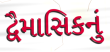
દ્વૈમાસિકનું